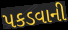
પકડવાની